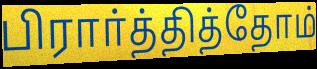
பிரார்த்தித்தோம்